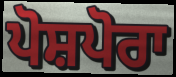
ਪੋਸ਼ਪੋਰਾ